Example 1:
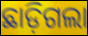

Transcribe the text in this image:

ଛାଡ଼ିଗଲା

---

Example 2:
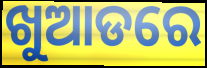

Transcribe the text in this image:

ଖୁଆଡରେ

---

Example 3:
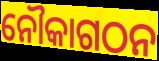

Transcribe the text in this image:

ନୌକାଗଠନ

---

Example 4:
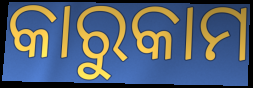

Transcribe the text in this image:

କାରୁକାମ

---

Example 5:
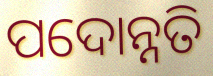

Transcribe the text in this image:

ପଦୋନ୍ନତି